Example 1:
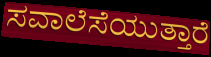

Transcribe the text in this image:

ಸವಾಲೆಸೆಯುತ್ತಾರೆ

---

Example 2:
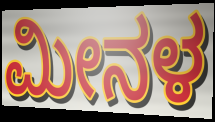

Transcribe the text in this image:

ಮೀನಳ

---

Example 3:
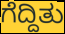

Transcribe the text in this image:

ಗೆದ್ದಿತು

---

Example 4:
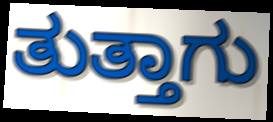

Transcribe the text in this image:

ತುತ್ತಾಗು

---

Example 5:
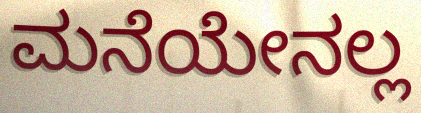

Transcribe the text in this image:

ಮನೆಯೇನಲ್ಲ